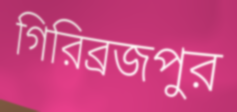
গিরিব্রজপুর